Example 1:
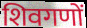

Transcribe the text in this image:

शिवगणों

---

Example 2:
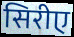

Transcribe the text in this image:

सिरीए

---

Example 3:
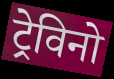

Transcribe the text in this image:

ट्रेविनो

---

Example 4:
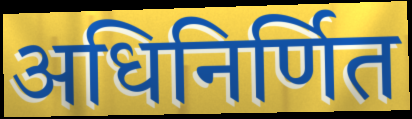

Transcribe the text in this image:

अधिनिर्णित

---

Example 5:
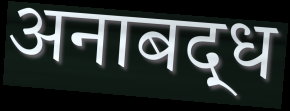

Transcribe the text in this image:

अनाबद्ध